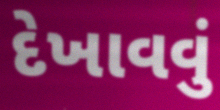
દેખાવવું